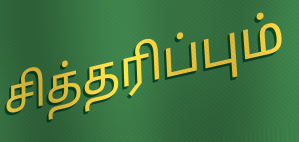
சித்தரிப்பும்